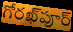
గోరఖ్‌పూర్